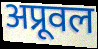
अप्रूवल